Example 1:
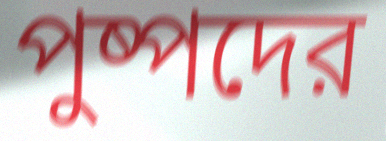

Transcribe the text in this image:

পুষ্পদের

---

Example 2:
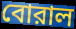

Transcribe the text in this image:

বোরাল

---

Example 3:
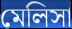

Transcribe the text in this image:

মেলিসা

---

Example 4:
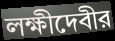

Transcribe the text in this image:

লক্ষীদেবীর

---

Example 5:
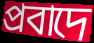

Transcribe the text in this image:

প্রবাদে